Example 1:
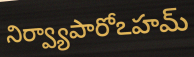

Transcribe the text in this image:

నిర్వ్యాపారోఽహమ్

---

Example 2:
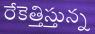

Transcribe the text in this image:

రేకెత్తిస్తున్న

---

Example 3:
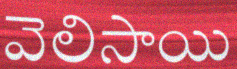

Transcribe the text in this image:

వెలిసాయి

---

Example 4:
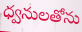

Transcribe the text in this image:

ధ్వనులతోను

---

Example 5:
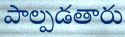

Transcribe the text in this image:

పాల్పడతారు